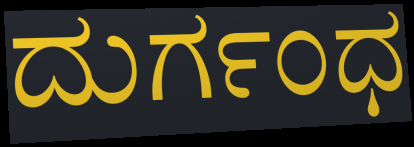
ದುರ್ಗಂಧ